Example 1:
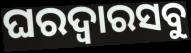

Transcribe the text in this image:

ଘରଦ୍ୱାରସବୁ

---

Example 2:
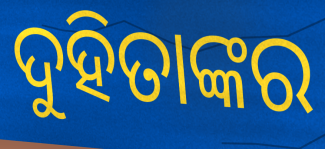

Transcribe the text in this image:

ଦୁହିତାଙ୍କର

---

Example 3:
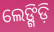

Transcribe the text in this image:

ଲେଙ୍ଗିଡ଼ି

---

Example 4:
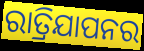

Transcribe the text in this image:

ରାତ୍ରିଯାପନର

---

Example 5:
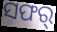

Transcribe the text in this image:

ସଫର୍